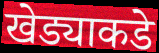
खेड्याकडे